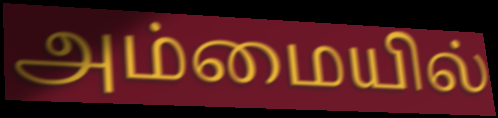
அம்மையில்